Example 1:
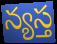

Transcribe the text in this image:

న్యస్త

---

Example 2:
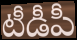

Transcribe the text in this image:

టీడీపీ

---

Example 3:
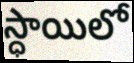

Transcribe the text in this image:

స్ధాయిలో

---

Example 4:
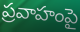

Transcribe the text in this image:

ప్రవాహంపై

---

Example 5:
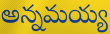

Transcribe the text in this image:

అన్నమయ్య